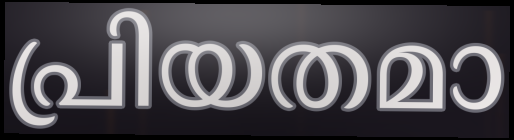
പ്രിയതമാ